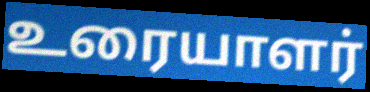
உரையாளர்